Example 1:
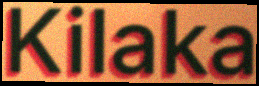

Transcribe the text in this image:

Kilaka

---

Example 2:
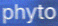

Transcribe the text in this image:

phyto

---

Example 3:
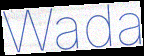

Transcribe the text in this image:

Wada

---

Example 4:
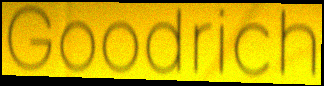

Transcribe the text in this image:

Goodrich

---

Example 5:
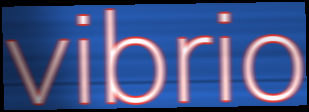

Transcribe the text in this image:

vibrio